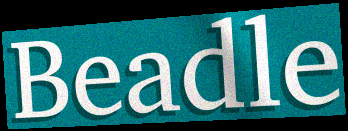
Beadle